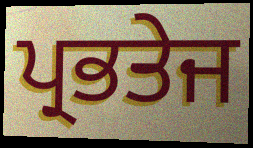
ਪ੍ਰਭਤੇਜ